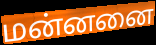
மன்னனை